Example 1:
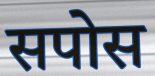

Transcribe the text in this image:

सपोस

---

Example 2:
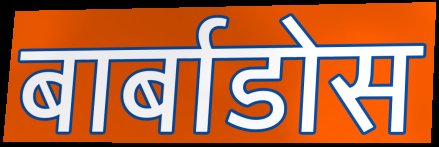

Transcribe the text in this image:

बार्बाडोस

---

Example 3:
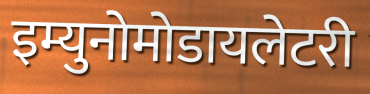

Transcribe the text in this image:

इम्युनोमोडायलेटरी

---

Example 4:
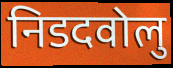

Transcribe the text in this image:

निडदवोलु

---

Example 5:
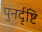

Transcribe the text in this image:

पुनर्दृष्टि